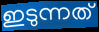
ഇടുന്നത്